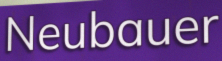
Neubauer